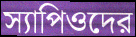
স্যাপিওদের